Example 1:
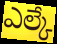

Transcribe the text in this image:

ఎల్కే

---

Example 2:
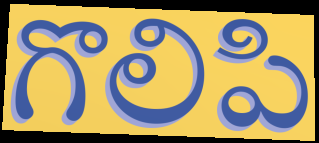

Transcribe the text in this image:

గొలిపి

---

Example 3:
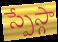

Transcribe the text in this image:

స్పేస్గా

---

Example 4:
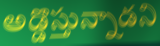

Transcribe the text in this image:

అడ్డొస్తున్నాడని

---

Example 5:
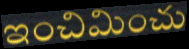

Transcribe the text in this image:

ఇంచిమించు